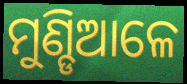
ମୁଣ୍ଡିଆଳେ